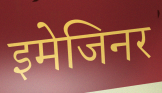
इमेजिनर